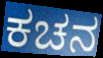
ಕಚನ